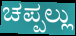
ಚಪ್ಪಲ್ಲು